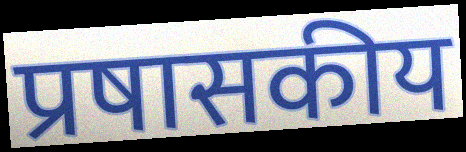
प्रषासकीय